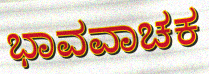
ಭಾವವಾಚಕ